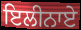
ਇਲੀਨਾਏ